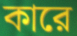
কারে